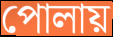
পোলায়